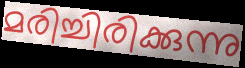
മരിച്ചിരിക്കുന്നു